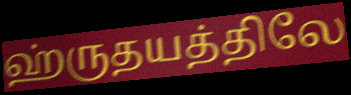
ஹ்ருதயத்திலே